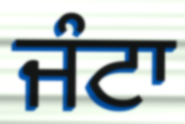
ਜੰਟਾ